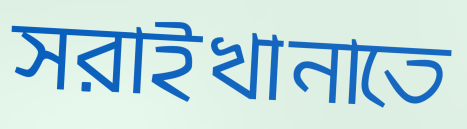
সরাইখানাতে